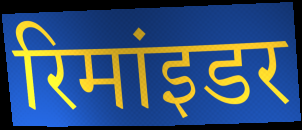
रिमांइडर